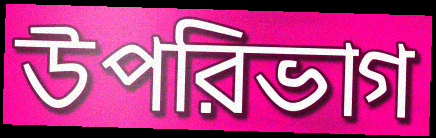
উপরিভাগ